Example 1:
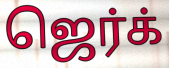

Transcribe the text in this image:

ஜெர்க்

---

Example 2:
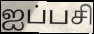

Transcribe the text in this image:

ஐப்பசி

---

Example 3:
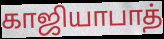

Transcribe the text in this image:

காஜியாபாத்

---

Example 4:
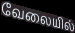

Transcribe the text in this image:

வேலையில்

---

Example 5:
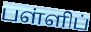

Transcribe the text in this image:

பள்ளிப்